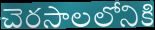
చెరసాలలోనికి